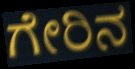
ಗೇರಿನ